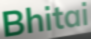
Bhitai